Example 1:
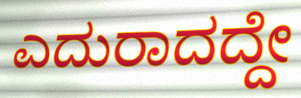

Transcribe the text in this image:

ಎದುರಾದದ್ದೇ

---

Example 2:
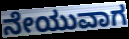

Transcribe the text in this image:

ನೇಯುವಾಗ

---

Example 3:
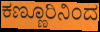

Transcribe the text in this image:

ಕಣ್ಣೂರಿನಿಂದ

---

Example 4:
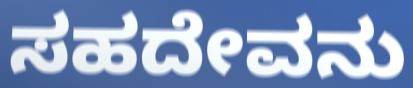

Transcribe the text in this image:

ಸಹದೇವನು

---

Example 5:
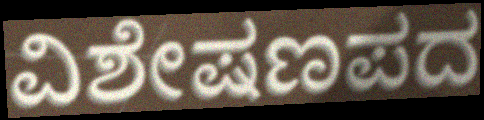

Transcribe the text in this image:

ವಿಶೇಷಣಪದ